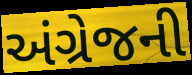
અંગ્રેજની